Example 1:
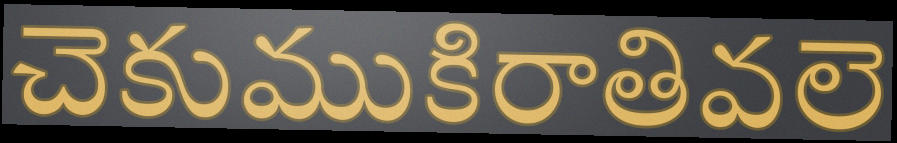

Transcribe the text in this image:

చెకుముకిరాతివలె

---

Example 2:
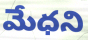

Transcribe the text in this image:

మేధని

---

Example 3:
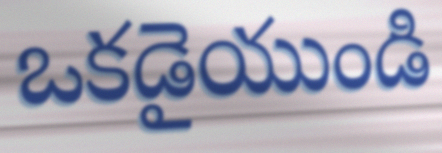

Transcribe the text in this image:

ఒకడైయుండి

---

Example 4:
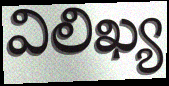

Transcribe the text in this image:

విలిఖ్య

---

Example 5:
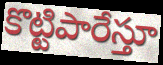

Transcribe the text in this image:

కొట్టిపారేస్తూ